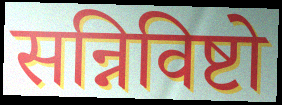
सन्निविष्टो